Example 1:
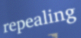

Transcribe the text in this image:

repealing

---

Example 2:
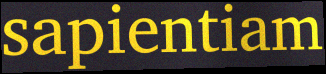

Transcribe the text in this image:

sapientiam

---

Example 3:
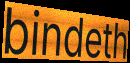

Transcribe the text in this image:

bindeth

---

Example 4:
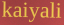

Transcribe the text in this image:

kaiyali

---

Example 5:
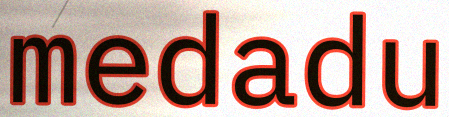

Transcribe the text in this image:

medadu